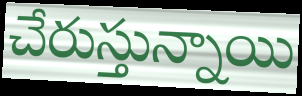
చేరుస్తున్నాయి